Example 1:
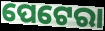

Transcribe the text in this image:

ପେଟେରା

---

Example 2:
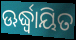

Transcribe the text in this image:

ଊର୍ଦ୍ଧ୍ୱାୟିତ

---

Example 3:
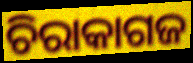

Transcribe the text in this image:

ଚିରାକାଗଜ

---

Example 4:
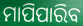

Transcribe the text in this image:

ମାପିପାରିବ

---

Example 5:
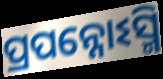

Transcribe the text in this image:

ପ୍ରପନ୍ନୋଽସ୍ମି